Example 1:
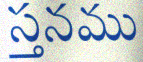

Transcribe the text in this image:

స్తనము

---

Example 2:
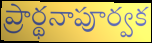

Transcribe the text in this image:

ప్రార్థనాపూర్వక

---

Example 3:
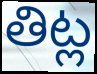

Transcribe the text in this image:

తిట్ల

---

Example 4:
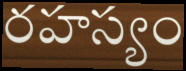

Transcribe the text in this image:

రహస్యం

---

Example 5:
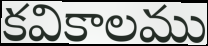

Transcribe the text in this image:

కవికాలము